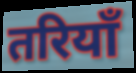
तरियाँ